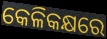
କେଳିକକ୍ଷରେ